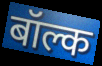
बॉल्क